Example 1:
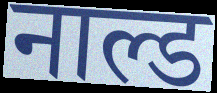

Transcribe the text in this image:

नाल्ड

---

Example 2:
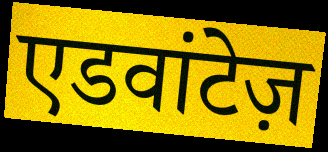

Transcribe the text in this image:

एडवांटेज़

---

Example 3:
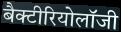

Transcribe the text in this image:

बैक्टीरियोलॉजी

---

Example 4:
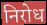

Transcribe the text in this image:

निरोध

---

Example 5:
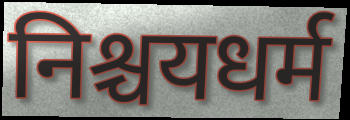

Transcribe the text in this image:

निश्चयधर्म